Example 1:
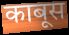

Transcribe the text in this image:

काबूस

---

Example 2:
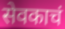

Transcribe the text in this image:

सेवकाचं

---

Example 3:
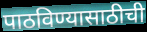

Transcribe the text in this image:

पाठविण्यासाठीची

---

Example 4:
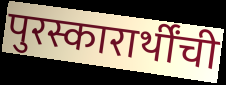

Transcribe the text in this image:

पुरस्कारार्थींची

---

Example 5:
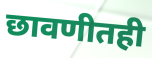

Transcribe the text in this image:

छावणीतही